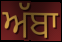
ਅੱਬਾ